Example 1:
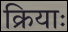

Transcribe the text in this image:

क्रियाः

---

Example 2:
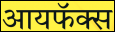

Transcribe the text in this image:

आयफॅक्स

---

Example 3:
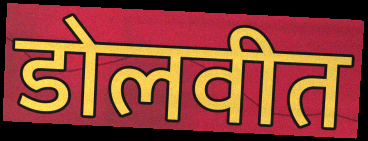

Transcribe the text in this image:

डोलवीत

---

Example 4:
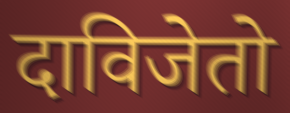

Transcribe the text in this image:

दाविजेतो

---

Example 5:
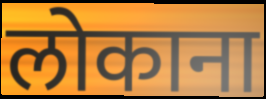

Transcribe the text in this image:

लोकाना